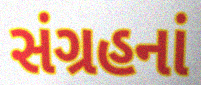
સંગ્રહનાં